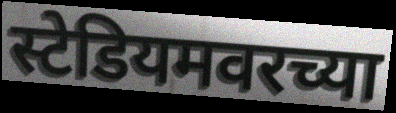
स्टेडियमवरच्या